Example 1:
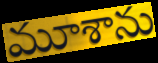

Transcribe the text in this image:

మూశాను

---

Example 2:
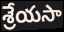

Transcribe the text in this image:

శ్రేయసా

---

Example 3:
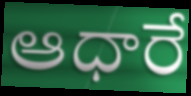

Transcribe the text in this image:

ఆధారే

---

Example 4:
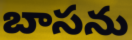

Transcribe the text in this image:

బాసను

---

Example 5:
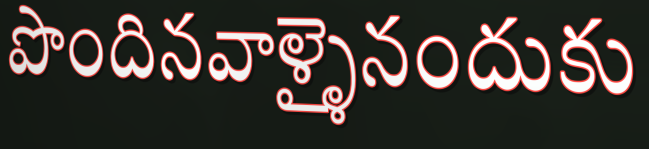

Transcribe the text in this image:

పొందినవాళ్ళైనందుకు